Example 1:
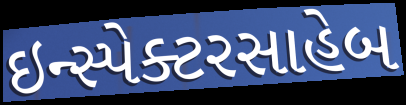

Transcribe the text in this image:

ઇન્સ્પેક્ટરસાહેબ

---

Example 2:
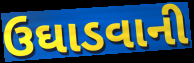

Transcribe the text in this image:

ઉઘાડવાની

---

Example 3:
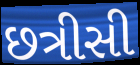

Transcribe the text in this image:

છત્રીસી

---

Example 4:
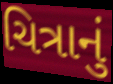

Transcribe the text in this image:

ચિત્રાનું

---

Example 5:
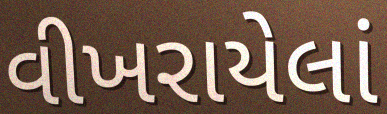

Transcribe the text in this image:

વીખરાયેલાં